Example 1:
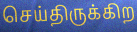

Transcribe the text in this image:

செய்திருக்கிற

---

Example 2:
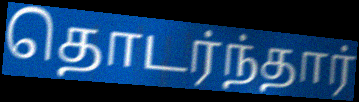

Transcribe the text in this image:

தொடர்ந்தார்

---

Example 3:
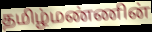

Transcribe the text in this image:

தமிழ்மண்ணின்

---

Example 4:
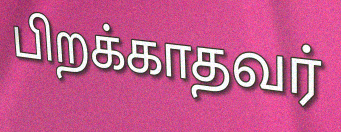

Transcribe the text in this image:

பிறக்காதவர்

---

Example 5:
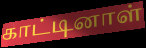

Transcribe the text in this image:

காட்டினாள்